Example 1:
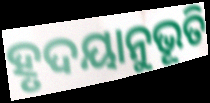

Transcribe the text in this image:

ହୃଦୟାନୁଭୂତି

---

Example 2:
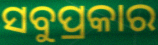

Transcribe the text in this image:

ସବୁପ୍ରକାର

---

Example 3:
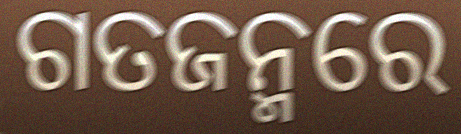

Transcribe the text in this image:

ଗତଜନ୍ମରେ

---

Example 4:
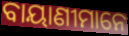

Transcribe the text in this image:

ବାୟାଣୀମାନେ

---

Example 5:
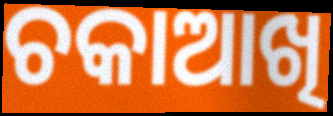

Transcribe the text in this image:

ଚକାଆଖି